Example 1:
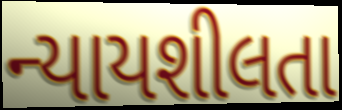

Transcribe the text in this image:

ન્યાયશીલતા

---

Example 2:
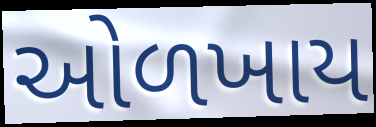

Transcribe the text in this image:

ઓળખાય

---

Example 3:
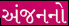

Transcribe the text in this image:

અંજનનો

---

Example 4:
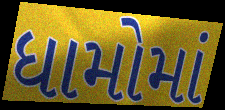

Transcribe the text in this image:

ધામોમાં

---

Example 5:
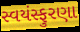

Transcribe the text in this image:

સ્વયંસ્ફુરણા